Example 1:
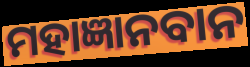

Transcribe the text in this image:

ମହାଜ୍ଞାନବାନ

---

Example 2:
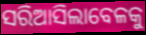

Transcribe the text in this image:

ସରିଆସିଲାବେଳକୁ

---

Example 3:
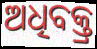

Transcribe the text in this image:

ଅଧିବକ୍ତ୍ର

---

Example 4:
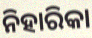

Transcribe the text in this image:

ନିହାରିକା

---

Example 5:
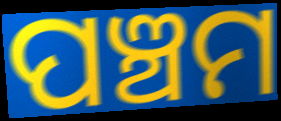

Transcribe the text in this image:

ପଞ୍ଚମ